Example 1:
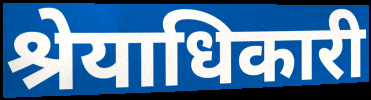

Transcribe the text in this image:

श्रेयाधिकारी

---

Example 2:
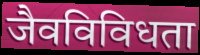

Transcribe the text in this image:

जैवविविधता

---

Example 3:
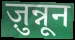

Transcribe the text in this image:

ज़ुन्नून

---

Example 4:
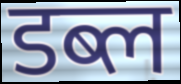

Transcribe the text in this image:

डब्ल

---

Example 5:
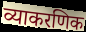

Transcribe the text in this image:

व्याकरणिक